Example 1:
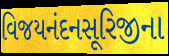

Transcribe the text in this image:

વિજયનંદનસૂરિજીના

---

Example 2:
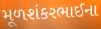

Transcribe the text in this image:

મૂળશંકરભાઈના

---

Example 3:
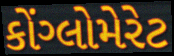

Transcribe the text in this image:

કોંગ્લોમેરેટ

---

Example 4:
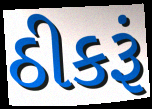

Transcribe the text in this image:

ઠીકરૂં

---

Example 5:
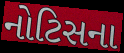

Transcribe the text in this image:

નોટિસના